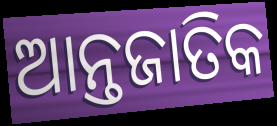
ଆନ୍ତଜାତିକ